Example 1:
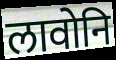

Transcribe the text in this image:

लावोनि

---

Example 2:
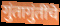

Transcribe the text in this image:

गुंतागुंतींचे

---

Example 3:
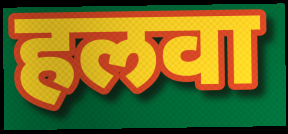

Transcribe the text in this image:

हलवा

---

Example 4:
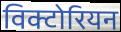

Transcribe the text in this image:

विक्टोरियन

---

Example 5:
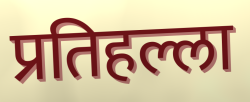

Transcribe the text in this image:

प्रतिहल्ला